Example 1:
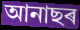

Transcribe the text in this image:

আনাছৰ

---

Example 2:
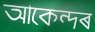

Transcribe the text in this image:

আকেন্দৰ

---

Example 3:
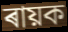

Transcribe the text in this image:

ৰায়ক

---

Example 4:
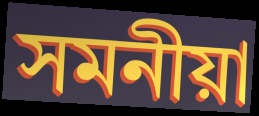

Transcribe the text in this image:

সমনীয়া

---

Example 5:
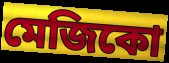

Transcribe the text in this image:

মেজিকো